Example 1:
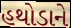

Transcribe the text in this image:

હથોડાને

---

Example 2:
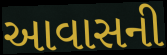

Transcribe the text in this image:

આવાસની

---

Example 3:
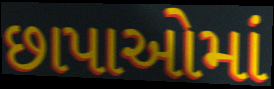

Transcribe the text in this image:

છાપાઓમાં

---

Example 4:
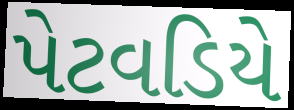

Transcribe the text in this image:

પેટવડિયે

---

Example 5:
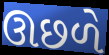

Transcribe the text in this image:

ઊછળે